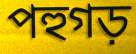
পহুগড়